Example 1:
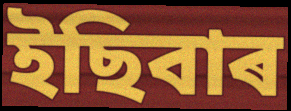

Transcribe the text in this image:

ইছিবাৰ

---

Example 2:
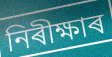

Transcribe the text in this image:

নিৰীক্ষাৰ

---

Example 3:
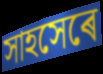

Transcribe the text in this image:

সাহসেৰে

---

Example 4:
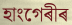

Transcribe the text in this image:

হাংগেৰীৰ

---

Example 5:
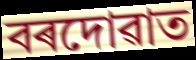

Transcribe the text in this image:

বৰদোৱাত